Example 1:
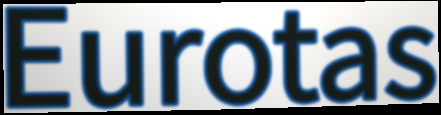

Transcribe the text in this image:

Eurotas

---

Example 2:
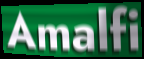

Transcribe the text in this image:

Amalfi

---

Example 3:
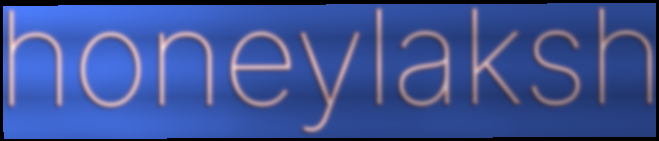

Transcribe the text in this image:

honeylaksh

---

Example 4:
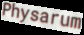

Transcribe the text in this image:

Physarum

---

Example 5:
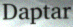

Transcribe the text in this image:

Daptar